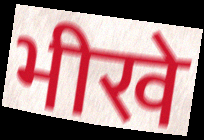
भीखे